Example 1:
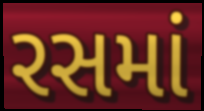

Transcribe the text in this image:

રસમાં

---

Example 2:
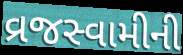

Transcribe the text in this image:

વ્રજસ્વામીની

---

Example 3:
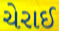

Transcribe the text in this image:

ચેરાઈ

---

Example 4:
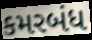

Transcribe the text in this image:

કમરબંધ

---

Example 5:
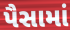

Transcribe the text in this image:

પૈસામાં